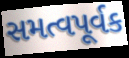
સમત્વપૂર્વક